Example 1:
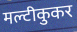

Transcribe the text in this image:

मल्टीकुकर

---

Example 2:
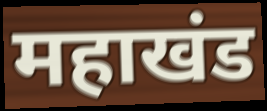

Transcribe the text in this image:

महाखंड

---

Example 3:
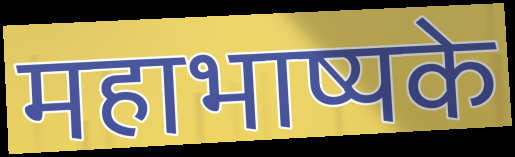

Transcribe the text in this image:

महाभाष्यके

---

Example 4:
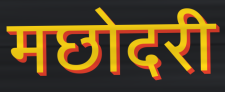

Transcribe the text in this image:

मछोदरी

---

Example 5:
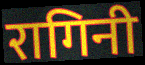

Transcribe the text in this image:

रागिनी